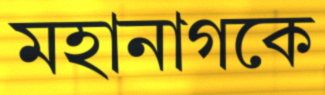
মহানাগকে